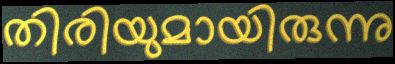
തിരിയുമായിരുന്നു